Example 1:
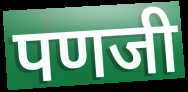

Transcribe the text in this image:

पणजी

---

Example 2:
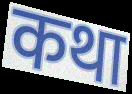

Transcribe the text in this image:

कथा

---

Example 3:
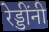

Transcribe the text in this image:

रेड्डींनी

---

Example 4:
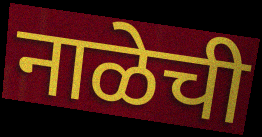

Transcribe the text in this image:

नाळेची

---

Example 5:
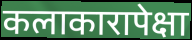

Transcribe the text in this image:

कलाकारापेक्षा